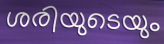
ശരിയുടെയും